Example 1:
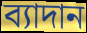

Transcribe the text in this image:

ব্যাদান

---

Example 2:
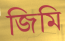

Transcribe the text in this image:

জিমি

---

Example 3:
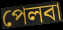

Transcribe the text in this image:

পেলবা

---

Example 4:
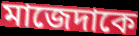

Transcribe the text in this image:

মাজেদাকে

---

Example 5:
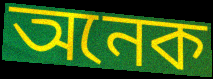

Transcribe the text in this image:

অনেক